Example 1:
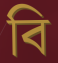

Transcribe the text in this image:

বি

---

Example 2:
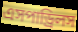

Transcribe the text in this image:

এসপাড্রিলস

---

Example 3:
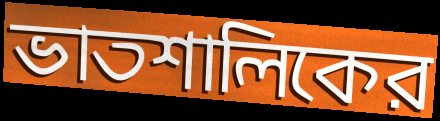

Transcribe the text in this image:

ভাতশালিকের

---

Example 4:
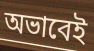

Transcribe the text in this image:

অভাবেই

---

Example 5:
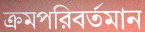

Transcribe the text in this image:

ক্রমপরিবর্তমান